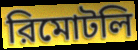
রিমোটলি